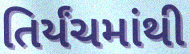
તિર્યંચમાંથી